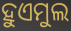
ହୁଏମୁଲ